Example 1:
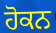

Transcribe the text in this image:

ਹੋਕਨ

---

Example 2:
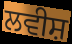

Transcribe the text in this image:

ਲਵੀਸ਼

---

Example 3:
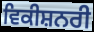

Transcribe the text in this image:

ਵਿਕੀਸ਼ਨਰੀ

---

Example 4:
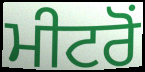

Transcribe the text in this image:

ਮੀਟਰੋਂ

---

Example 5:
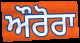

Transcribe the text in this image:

ਔਰੋਰਾ